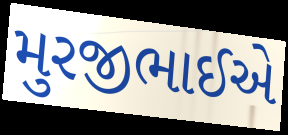
મુરજીભાઈએ